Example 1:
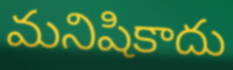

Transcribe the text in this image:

మనిషికాదు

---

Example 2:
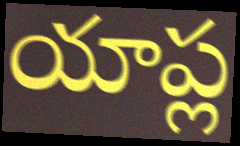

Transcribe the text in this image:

యాప్ల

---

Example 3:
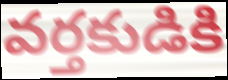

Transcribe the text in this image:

వర్తకుడికి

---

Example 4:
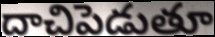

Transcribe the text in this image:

దాచిపెడుతూ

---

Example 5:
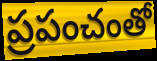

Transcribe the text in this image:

ప్రపంచంతో